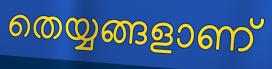
തെയ്യങ്ങളാണ്